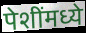
पेशींमध्ये